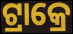
ଟ୍ରାକ୍ରେ